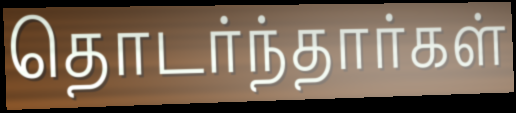
தொடர்ந்தார்கள்